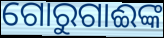
ଗୋରୁଗାଈଙ୍କ